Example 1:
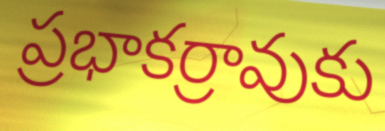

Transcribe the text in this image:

ప్రభాకర్రావుకు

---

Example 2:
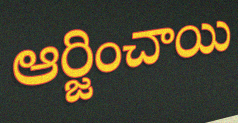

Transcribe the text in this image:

ఆర్జించాయి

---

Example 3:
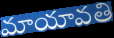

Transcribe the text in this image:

మాయావతి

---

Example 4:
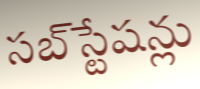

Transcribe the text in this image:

సబ్‌స్టేషన్లు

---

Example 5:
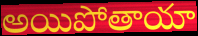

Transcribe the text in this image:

అయిపోతాయా